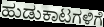
ಹುಡುಕಾಟಗಳಿಗೆ